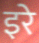
इरे